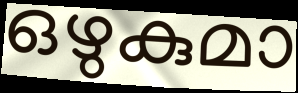
ഒഴുകുമാ